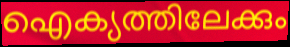
ഐക്യത്തിലേക്കും